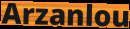
Arzanlou